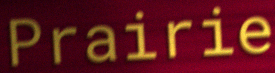
Prairie